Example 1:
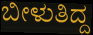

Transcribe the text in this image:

ಬೀಳುತಿದ್ದ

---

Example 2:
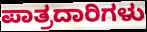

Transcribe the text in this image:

ಪಾತ್ರದಾರಿಗಳು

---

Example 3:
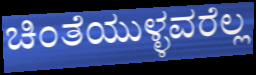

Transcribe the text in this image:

ಚಿಂತೆಯುಳ್ಳವರೆಲ್ಲ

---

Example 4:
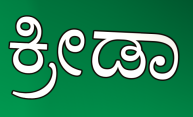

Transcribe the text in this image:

ಕ್ರೀಡಾ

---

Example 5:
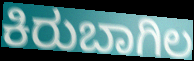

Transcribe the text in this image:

ಕಿರುಬಾಗಿಲ